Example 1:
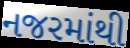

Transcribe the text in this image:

નજરમાંથી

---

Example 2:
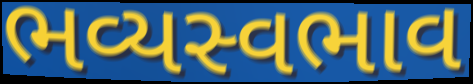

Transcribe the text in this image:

ભવ્યસ્વભાવ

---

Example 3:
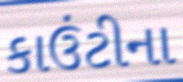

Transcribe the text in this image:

કાઉંટીના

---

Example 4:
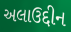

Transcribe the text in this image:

અલાઉદ્દીન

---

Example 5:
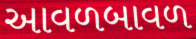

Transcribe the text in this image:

આવળબાવળ